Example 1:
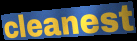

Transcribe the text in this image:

cleanest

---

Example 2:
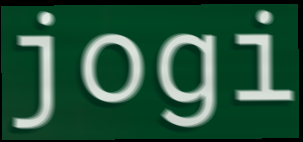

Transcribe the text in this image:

jogi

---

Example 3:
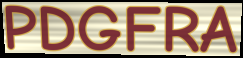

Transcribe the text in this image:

PDGFRA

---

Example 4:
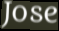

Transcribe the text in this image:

Jose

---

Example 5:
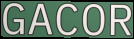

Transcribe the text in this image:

GACOR